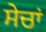
ਸੇਚਾਂ